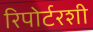
रिपोर्टरशी